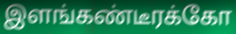
இளங்கண்டீரக்கோ